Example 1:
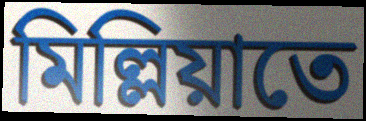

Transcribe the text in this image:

মিল্লিয়াতে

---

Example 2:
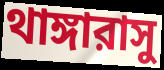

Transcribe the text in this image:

থাঙ্গারাসু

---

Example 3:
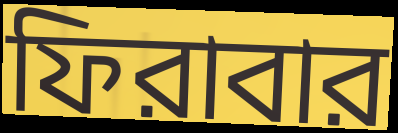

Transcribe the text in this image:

ফিরাবার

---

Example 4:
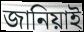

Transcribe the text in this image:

জানিয়াই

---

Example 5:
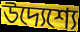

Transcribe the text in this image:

উদ্যেশ্যে